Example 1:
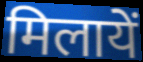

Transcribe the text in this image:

मिलायें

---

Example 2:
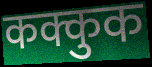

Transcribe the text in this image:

कक्कुक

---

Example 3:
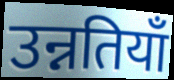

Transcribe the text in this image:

उन्नतियाँ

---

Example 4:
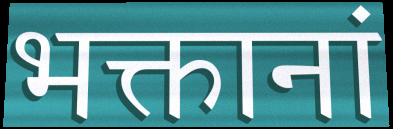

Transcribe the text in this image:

भक्तानां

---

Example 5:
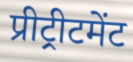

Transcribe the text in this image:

प्रीट्रीटमेंट